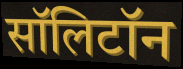
सॉलिटॉन